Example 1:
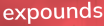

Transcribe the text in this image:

expounds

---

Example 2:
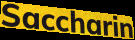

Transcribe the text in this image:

Saccharin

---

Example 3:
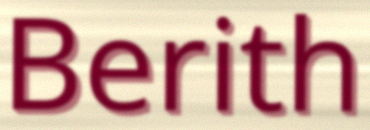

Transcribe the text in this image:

Berith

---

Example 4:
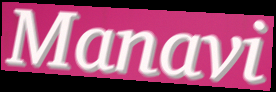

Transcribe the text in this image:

Manavi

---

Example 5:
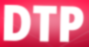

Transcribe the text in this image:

DTP